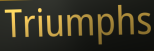
Triumphs